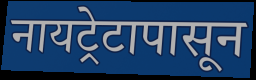
नायट्रेटापासून